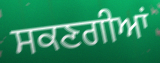
ਸਕਣਗੀਆਂ